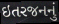
ઇતરજનનું